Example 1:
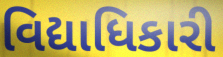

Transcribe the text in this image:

વિદ્યાધિકારી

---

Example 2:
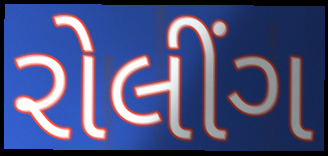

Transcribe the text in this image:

રોલીંગ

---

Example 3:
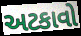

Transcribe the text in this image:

અટકાવો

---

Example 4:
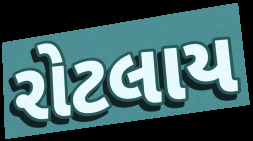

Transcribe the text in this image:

રોટલાય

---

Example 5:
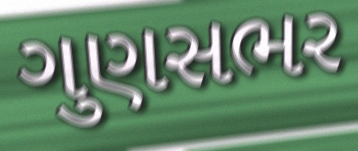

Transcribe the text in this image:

ગુણસભર